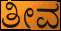
ತೀವ